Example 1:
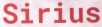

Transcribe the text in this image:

Sirius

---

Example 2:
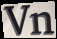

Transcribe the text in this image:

Vn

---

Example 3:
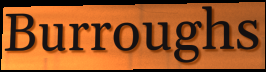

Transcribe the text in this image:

Burroughs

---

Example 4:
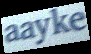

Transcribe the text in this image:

aayke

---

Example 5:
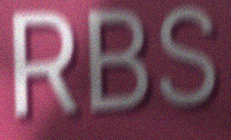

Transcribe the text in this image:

RBS